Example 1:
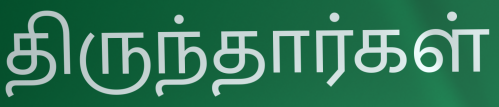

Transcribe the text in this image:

திருந்தார்கள்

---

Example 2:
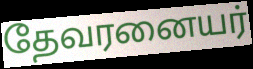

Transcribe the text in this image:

தேவரனையர்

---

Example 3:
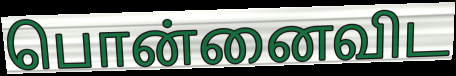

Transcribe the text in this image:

பொன்னைவிட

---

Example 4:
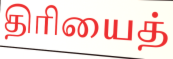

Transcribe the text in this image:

திரியைத்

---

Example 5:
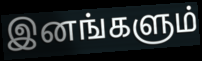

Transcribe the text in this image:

இனங்களும்